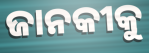
ଜାନକୀକୁ